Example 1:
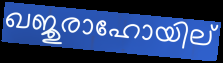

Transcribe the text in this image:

ഖജുരാഹോയില്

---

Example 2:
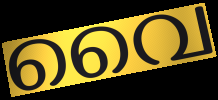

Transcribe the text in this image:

വൈ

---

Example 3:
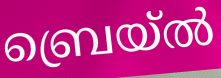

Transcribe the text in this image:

ബ്രെയ്ൽ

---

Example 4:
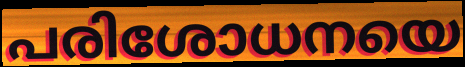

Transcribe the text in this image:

പരിശോധനയെ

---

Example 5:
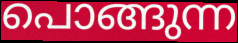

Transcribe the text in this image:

പൊങ്ങുന്ന